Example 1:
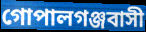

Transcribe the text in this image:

গোপালগঞ্জবাসী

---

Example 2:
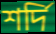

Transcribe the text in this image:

শর্দি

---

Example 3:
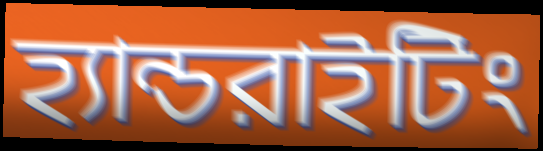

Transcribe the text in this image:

হ্যান্ডরাইটিং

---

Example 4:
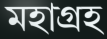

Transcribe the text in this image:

মহাগ্রহ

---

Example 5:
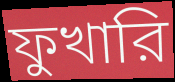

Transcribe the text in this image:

ফুখারি